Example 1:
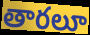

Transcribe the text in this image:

తారలూ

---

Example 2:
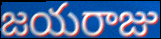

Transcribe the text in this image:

జయరాజు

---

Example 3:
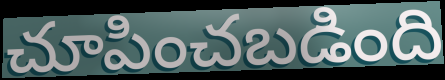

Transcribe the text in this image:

చూపించబడింది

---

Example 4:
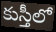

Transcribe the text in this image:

కుస్తీలో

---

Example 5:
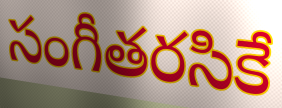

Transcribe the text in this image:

సంగీతరసికే